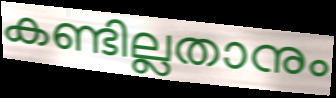
കണ്ടില്ലതാനും